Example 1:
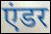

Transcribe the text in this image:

एंडर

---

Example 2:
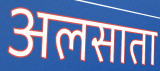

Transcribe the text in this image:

अलसाता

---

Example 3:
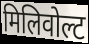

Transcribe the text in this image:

मिलिवोल्ट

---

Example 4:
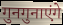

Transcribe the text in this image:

गुनगुनाएंगे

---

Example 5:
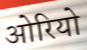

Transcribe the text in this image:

ओरियो